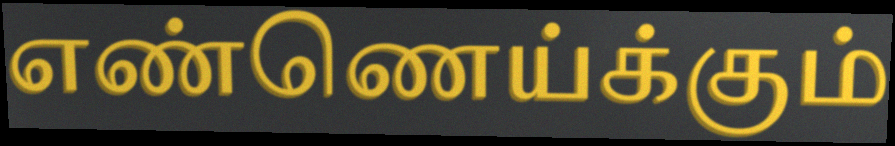
எண்ணெய்க்கும்